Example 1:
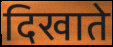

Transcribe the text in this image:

दिखाते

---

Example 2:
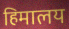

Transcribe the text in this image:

हिमालय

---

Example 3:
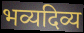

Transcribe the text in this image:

भव्यदिव्य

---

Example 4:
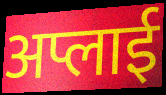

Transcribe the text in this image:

अप्लाई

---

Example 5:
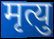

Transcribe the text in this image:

मृत्यु